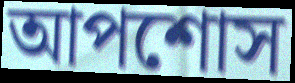
আপশোস